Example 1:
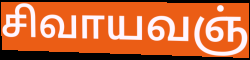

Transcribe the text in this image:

சிவாயவஞ்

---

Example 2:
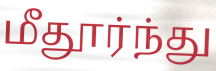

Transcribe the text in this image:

மீதூர்ந்து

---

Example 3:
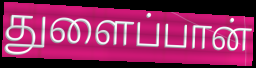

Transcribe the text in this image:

துளைப்பான்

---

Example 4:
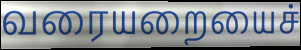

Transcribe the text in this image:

வரையறையைச்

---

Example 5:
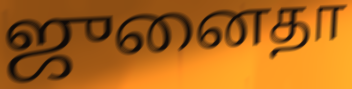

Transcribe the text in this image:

ஜுனைதா